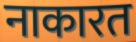
नाकारत